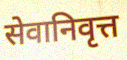
सेवानिवृत्त